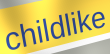
childlike